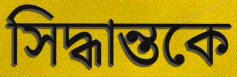
সিদ্ধান্তকে